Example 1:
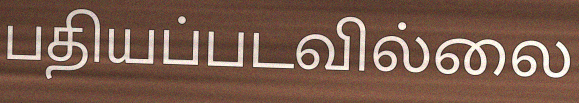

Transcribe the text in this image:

பதியப்படவில்லை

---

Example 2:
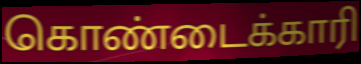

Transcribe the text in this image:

கொண்டைக்காரி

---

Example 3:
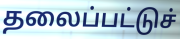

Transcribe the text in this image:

தலைப்பட்டுச்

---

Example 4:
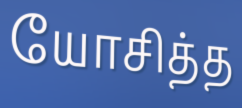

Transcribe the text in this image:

யோசித்த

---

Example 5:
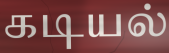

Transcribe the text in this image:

கடியல்